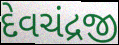
દેવચંદ્રજી